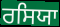
ਰਸਿਯਾ